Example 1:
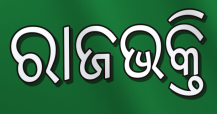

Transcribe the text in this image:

ରାଜଭକ୍ତି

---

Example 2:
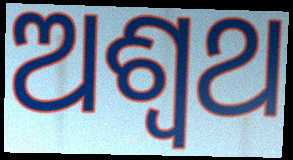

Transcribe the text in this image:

ଅଶ୍ବଥ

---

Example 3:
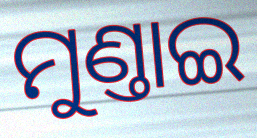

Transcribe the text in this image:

ମୁଣ୍ତାଇ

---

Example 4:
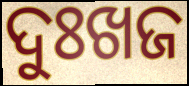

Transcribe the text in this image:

ଦୁଃଖଜ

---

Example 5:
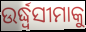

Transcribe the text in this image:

ଉର୍ଦ୍ଧ୍ୱସୀମାକୁ